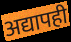
अद्यापही